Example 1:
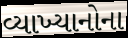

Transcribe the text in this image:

વ્યાખ્યાનોના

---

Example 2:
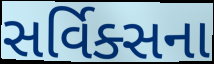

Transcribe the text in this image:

સર્વિક્સના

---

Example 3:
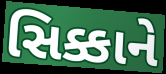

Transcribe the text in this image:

સિક્કાને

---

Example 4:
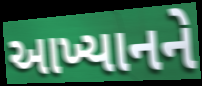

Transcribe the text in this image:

આખ્યાનને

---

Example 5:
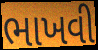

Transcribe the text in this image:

ભાખવી